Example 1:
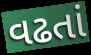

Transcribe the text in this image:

વઢતાં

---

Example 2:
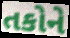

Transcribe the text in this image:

તકોને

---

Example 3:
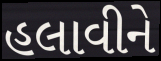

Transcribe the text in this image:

હલાવીને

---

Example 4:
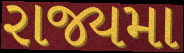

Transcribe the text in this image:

રાજ્યમા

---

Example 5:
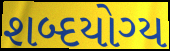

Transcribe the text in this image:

શબ્દયોગ્ય